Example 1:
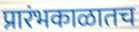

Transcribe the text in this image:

प्रारंभकाळातच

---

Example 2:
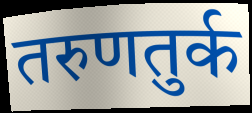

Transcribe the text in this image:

तरुणतुर्क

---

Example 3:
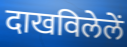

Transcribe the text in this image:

दाखविलेलें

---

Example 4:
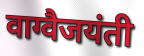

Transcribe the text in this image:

वाग्वैजयंती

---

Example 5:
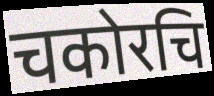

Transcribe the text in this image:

चकोरचि